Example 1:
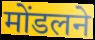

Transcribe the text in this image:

मोंडलने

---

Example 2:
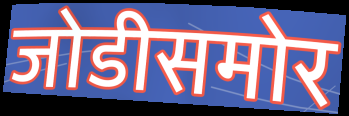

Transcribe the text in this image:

जोडीसमोर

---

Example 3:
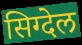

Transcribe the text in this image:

सिग्देल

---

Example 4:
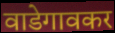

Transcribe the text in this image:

वाडेगावकर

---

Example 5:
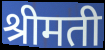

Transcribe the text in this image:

श्रीमती